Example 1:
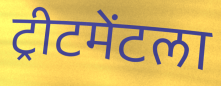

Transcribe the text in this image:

ट्रीटमेंटला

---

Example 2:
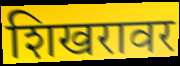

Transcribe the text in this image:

शिखरावर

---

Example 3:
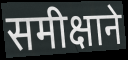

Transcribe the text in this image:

समीक्षाने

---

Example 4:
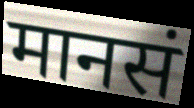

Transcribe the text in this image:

मानसं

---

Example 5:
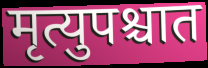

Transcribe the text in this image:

मृत्युपश्चात